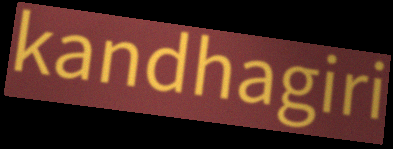
kandhagiri